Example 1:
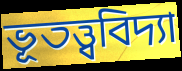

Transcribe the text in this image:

ভূতত্ত্ববিদ্যা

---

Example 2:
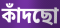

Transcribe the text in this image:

কাঁদছো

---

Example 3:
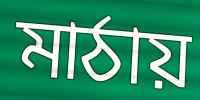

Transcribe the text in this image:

মাঠায়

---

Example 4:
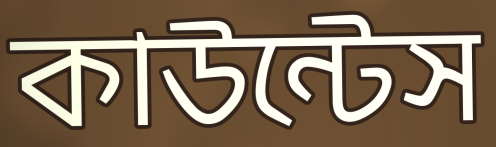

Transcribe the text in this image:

কাউন্টেস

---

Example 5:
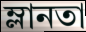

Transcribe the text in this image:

ম্লানতা